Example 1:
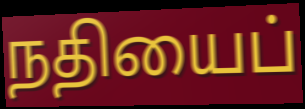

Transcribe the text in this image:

நதியைப்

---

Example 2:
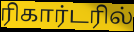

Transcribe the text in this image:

ரிகார்டரில்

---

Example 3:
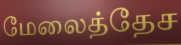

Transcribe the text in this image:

மேலைத்தேச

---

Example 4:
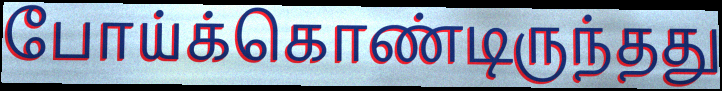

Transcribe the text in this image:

போய்க்கொண்டிருந்தது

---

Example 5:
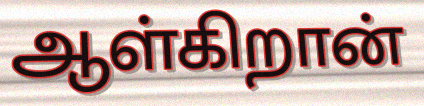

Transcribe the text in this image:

ஆள்கிறான்